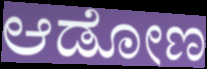
ಆಡೋಣ